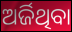
ଅର୍ଜିଥିବା